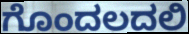
ಗೊಂದಲದಲಿ